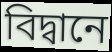
বিদ্বানে